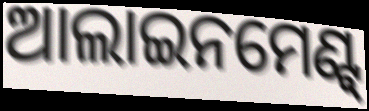
ଆଲାଇନମେଣ୍ଟ୍